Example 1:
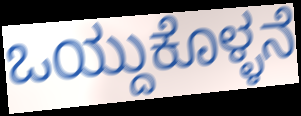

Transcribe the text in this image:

ಒಯ್ದುಕೊಳ್ಳನೆ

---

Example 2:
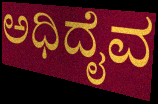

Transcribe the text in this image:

ಅಧಿದೈವ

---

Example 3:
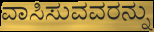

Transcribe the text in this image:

ವಾಸಿಸುವವರನ್ನು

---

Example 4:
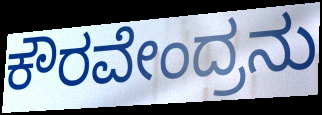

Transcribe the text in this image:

ಕೌರವೇಂದ್ರನು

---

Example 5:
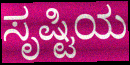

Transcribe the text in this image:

ಸೃಷ್ಟಿಯ